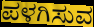
ಪಳಗಿಸುವ